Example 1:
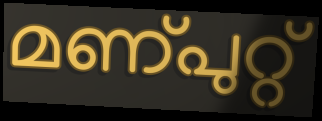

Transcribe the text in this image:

മണ്പുറ്റ്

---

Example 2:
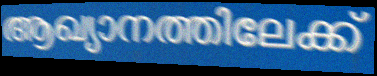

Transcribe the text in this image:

ആഖ്യാനത്തിലേക്ക്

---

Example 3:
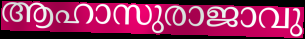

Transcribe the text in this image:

ആഹാസുരാജാവു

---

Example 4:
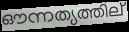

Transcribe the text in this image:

ഔന്നത്യത്തില്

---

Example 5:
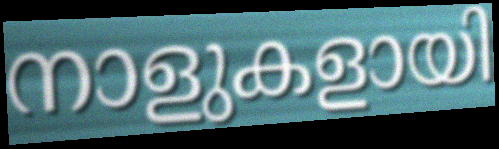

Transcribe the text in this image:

നാളുകളായി